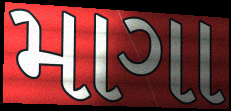
માગા